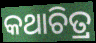
କଥାଚିତ୍ର